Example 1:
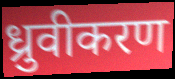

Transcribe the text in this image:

ध्रुवीकरण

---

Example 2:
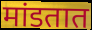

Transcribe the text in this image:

मांडतात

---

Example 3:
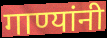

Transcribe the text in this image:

गाण्यांनी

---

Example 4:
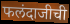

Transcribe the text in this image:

फलंदाजीची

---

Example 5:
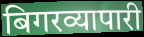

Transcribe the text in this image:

बिगरव्यापारी